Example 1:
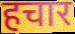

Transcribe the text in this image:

हचार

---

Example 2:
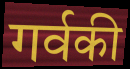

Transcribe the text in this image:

गर्वकी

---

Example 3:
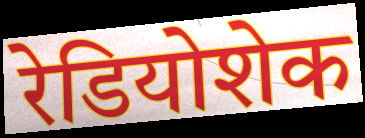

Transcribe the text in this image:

रेडियोशेक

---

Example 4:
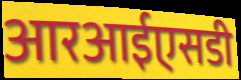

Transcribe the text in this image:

आरआईएसडी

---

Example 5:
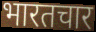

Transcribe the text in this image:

भारतचार